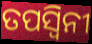
ତପସ୍ଵିନୀ